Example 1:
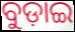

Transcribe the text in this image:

ବୁଡ଼ାଇ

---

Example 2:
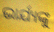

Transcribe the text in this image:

ଭାର୍ଯ୍ୟଙ୍କୁ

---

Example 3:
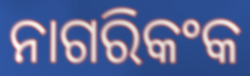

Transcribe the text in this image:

ନାଗରିକଂକ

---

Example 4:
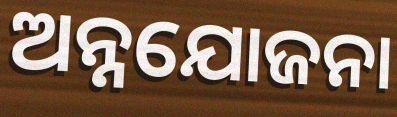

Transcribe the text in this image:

ଅନ୍ନଯୋଜନା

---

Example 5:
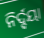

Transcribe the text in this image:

ନିର୍ଦ୍ଦୟା